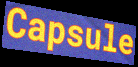
Capsule